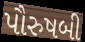
પૌરુષબી